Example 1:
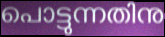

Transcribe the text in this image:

പൊട്ടുന്നതിനു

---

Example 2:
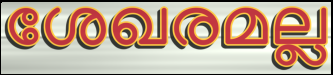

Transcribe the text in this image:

ശേഖരമല്ല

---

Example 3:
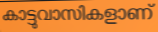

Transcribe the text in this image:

കാട്ടുവാസികളാണ്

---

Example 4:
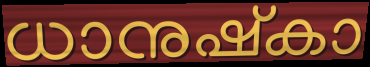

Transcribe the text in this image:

ധാനുഷ്കാ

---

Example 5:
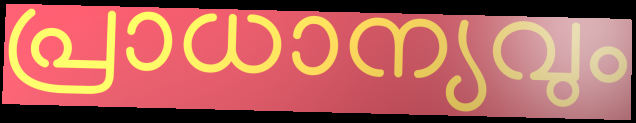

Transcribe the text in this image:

പ്രാധാന്യവും